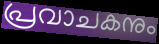
പ്രവാചകനും